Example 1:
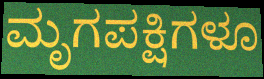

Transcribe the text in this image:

ಮೃಗಪಕ್ಷಿಗಳೂ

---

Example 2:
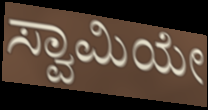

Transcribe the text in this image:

ಸ್ವಾಮಿಯೇ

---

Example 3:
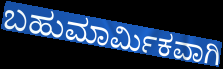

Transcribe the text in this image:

ಬಹುಮಾರ್ಮಿಕವಾಗಿ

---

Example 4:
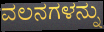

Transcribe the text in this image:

ವಲನಗಳನ್ನು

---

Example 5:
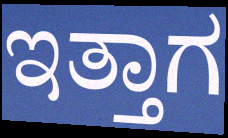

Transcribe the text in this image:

ಇತ್ತಾಗ